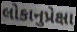
લોકાનુપ્રેક્ષા